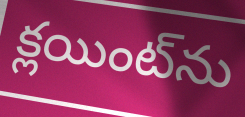
క్లయింట్‌ను